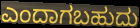
ಎಂದಾಗಬಹುದು